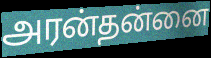
அரன்தன்னை